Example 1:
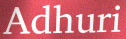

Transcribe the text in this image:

Adhuri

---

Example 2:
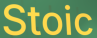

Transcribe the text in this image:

Stoic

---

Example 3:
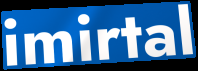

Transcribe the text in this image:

imirtal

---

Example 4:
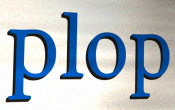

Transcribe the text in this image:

plop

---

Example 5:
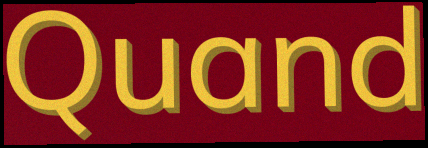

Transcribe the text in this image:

Quand